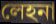
লেহনা